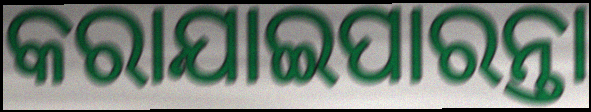
କରାଯାଇପାରନ୍ତା